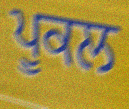
ਪੂਕਲ